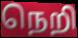
நெறி